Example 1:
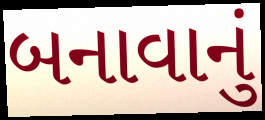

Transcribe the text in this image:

બનાવાનું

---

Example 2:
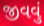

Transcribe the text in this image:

જીવવું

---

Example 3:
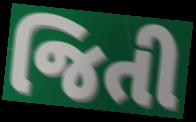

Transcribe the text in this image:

જિતી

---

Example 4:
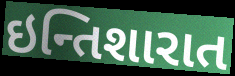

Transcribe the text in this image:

ઇન્તિશારાત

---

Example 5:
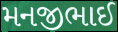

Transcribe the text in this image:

મનજીભાઈ